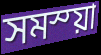
সমস্য়া